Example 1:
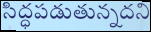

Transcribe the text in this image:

సిద్ధపడుతున్నదని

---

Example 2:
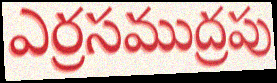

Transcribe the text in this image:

ఎర్రసముద్రపు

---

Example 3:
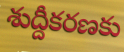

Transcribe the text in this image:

శుద్దీకరణకు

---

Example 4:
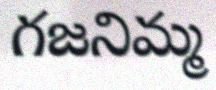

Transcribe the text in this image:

గజనిమ్మ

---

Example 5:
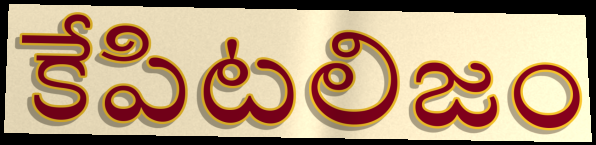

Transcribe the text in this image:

కేపిటలిజం